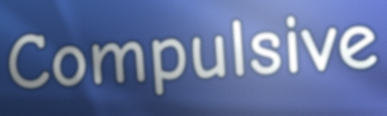
Compulsive